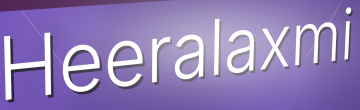
Heeralaxmi